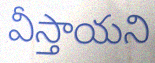
వీస్తాయని